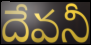
దేవనీ